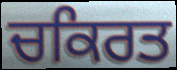
ਚਕਿਰਤ